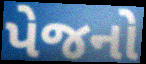
પેજનો